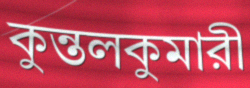
কুন্তলকুমারী